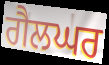
ਗੈਲਘਰ